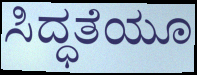
ಸಿದ್ಧತೆಯೂ